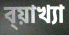
ব্য়াখ্যা